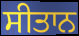
ਸੀਤਾਨ